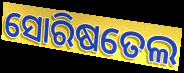
ସୋରିଷତେଲ